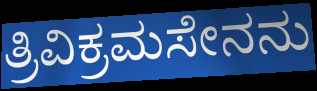
ತ್ರಿವಿಕ್ರಮಸೇನನು